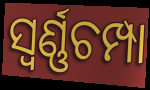
ସ୍ୱର୍ଣ୍ଣଚମ୍ପା